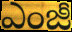
ఎంజీ